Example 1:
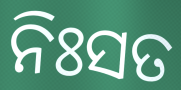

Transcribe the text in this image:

ନିଃସତ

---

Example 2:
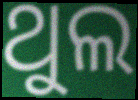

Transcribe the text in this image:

ଥୁଲ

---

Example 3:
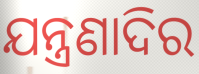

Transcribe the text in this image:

ଯନ୍ତ୍ରଣାଦିର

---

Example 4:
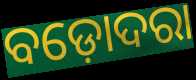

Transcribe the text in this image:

ବଡ଼ୋଦରା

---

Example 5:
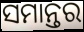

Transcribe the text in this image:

ସମାନ୍ତର